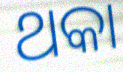
ଥକା